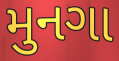
મુનગા